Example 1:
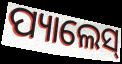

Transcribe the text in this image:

ପ୍ୟାଲେସ୍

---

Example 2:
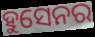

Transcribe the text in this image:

ହୁସେନର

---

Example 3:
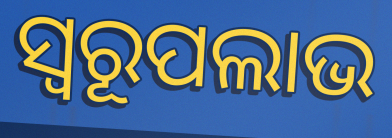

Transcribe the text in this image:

ସ୍ବରୂପଲାଭ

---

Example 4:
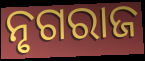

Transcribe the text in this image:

ନୃଗରାଜ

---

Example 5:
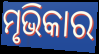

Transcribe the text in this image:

ମୃଭିକାର